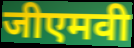
जीएमवी